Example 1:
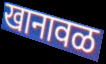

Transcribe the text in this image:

खानावळ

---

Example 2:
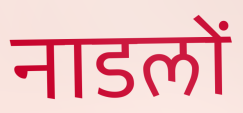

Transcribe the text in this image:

नाडलों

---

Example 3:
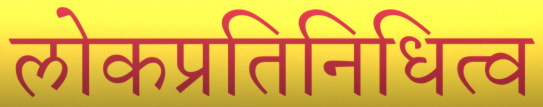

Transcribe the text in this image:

लोकप्रतिनिधित्व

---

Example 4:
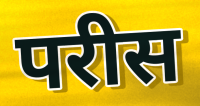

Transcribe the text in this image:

परीस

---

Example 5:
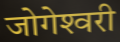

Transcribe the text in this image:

जोगेश्‍वरी